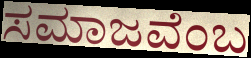
ಸಮಾಜವೆಂಬ